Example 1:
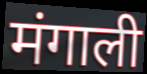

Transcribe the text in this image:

मंगाली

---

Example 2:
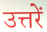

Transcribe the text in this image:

उत्तरें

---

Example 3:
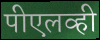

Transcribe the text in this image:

पीएलव्ही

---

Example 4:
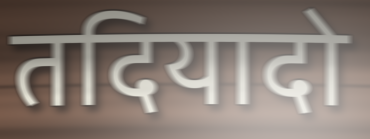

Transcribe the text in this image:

तदियादो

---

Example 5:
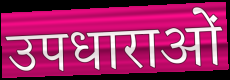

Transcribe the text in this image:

उपधाराओं